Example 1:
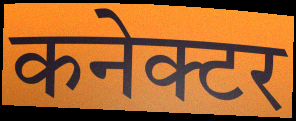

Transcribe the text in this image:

कनेक्टर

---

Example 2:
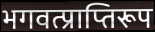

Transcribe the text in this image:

भगवत्प्राप्तिरूप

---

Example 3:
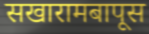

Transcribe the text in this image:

सखारामबापूस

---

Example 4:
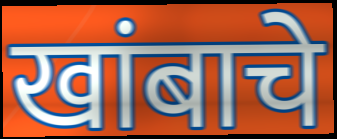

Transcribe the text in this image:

खांबाचे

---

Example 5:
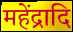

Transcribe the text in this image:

महेंद्रादि